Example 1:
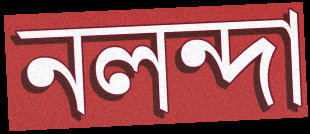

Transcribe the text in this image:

নলন্দা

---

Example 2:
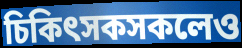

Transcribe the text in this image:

চিকিৎসকসকলেও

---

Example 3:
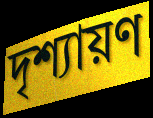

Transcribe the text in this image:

দৃশ্যায়ণ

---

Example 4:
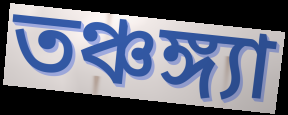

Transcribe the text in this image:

তঞ্চঙ্গ্যা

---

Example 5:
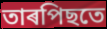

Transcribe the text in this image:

তাৰপিছতে